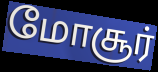
மோசூர்